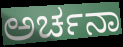
ಅರ್ಚನಾ